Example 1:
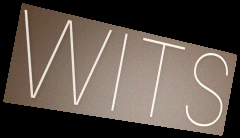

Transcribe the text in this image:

WITS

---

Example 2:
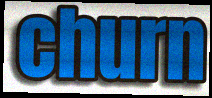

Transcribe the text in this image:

churn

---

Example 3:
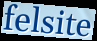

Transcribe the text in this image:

felsite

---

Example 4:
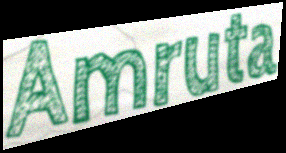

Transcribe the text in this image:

Amruta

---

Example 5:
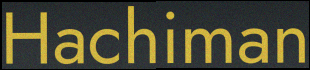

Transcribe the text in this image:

Hachiman